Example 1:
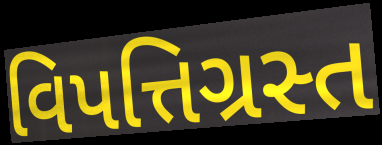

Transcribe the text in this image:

વિપત્તિગ્રસ્ત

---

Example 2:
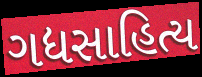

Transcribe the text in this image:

ગદ્યસાહિત્ય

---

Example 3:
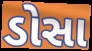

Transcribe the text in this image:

ડોસા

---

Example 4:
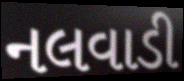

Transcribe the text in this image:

નલવાડી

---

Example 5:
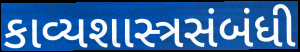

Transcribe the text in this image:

કાવ્યશાસ્ત્રસંબંધી